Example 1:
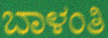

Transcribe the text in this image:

ಬಾಳಂತಿ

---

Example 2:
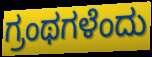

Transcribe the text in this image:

ಗ್ರಂಥಗಳೆಂದು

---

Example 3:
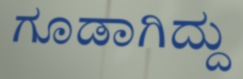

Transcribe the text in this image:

ಗೂಡಾಗಿದ್ದು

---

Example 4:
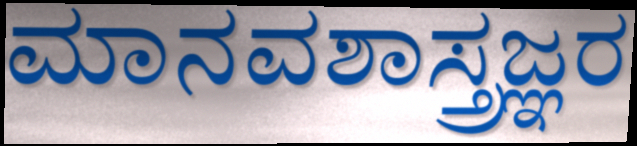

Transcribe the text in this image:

ಮಾನವಶಾಸ್ತ್ರಜ್ಞರ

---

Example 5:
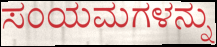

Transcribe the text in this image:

ಸಂಯಮಗಳನ್ನು